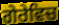
ਗੇਰੇਵਿਚ